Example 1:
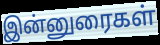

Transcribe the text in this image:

இன்னுரைகள்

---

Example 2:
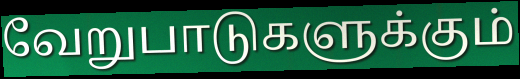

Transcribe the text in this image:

வேறுபாடுகளுக்கும்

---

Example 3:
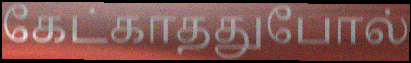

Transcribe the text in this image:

கேட்காததுபோல்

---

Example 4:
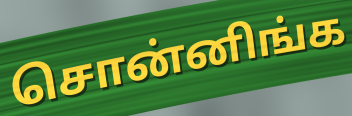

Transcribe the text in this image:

சொன்னிங்க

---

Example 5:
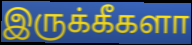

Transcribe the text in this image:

இருக்கீகளா